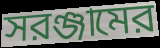
সরঞ্জামের